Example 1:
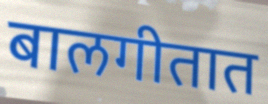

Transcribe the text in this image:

बालगीतात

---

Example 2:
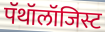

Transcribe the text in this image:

पॅथॉलॉजिस्ट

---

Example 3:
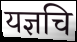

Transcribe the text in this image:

यज्ञचि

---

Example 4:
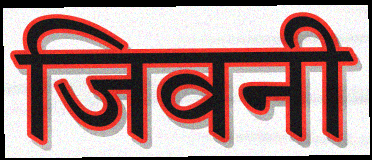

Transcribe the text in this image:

जिवनी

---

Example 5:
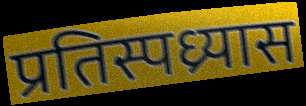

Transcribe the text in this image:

प्रतिस्पध्र्यास